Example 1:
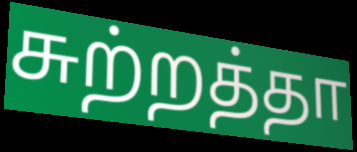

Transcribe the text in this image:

சுற்றத்தா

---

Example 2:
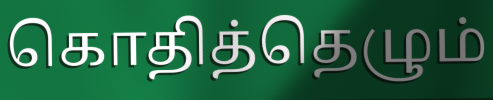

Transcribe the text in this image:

கொதித்தெழும்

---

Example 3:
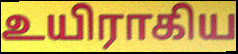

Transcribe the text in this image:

உயிராகிய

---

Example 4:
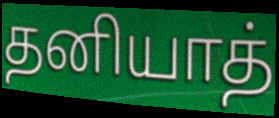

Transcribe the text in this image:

தனியாத்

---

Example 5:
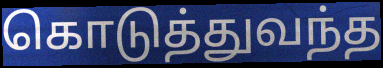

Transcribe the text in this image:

கொடுத்துவந்த